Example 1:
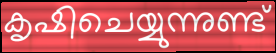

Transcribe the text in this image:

കൃഷിചെയ്യുന്നുണ്ട്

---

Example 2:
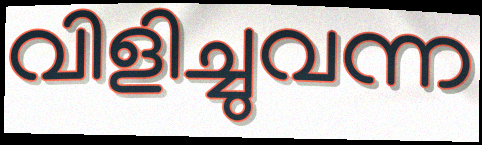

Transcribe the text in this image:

വിളിച്ചുവന്ന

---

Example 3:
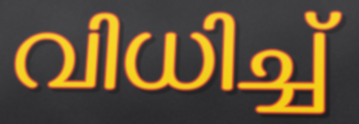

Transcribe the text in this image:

വിധിച്ച്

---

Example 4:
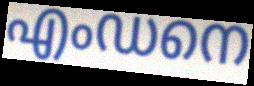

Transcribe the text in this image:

എംഡനെ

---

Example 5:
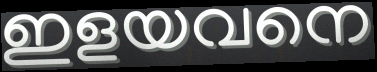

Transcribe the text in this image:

ഇളയവനെ